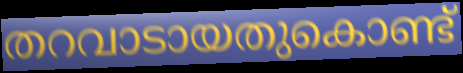
തറവാടായതുകൊണ്ട്